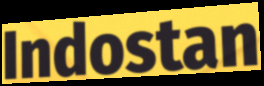
Indostan